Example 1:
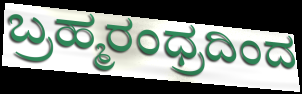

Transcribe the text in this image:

ಬ್ರಹ್ಮರಂಧ್ರದಿಂದ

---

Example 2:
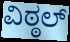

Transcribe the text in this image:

ವಿಠ್ಠಲ್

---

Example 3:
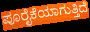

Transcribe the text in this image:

ಪೂರೈಕೆಯಾಗುತ್ತಿದೆ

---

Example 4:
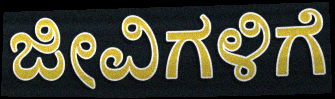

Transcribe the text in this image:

ಜೀವಿಗಳಿಗೆ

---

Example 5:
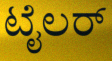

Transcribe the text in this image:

ಟೈಲರ್